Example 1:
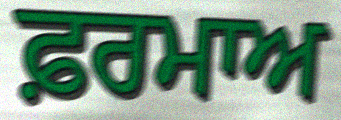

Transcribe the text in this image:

ਫ਼ਰਮਾਅ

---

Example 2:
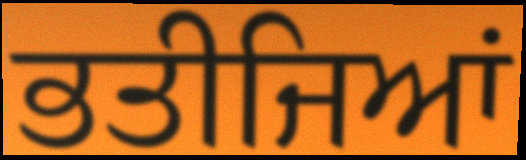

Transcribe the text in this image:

ਭਤੀਜਿਆਂ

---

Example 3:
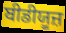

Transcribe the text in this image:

ਬੀਡੀਯੂਜ਼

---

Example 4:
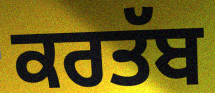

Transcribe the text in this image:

ਕਰਤੱਬ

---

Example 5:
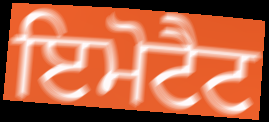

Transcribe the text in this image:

ਇਮੋਟੈਟ